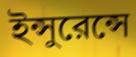
ইন্সুরেন্সে